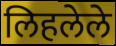
लिहलेले